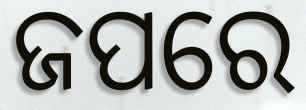
ଜପରେ